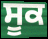
ਸੂਕ